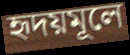
হৃদয়মূলে